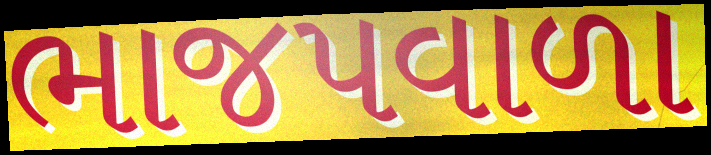
ભાજપવાળા